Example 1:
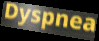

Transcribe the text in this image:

Dyspnea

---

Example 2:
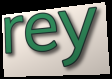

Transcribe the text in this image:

rey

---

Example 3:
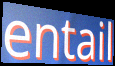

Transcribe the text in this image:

entail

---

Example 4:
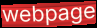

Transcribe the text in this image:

webpage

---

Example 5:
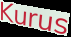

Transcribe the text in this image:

Kurus